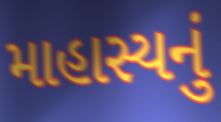
માહાસ્યનું